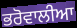
ਭਰੋਵਾਲੀਆ